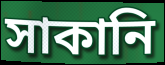
সাকানি